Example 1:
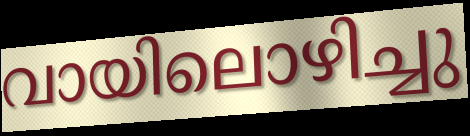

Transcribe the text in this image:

വായിലൊഴിച്ചു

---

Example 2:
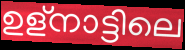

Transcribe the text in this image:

ഉള്നാട്ടിലെ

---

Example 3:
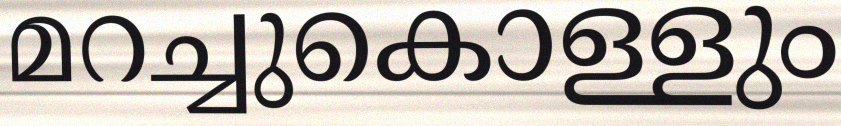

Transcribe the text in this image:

മറച്ചുകൊള്ളും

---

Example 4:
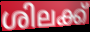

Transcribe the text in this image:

ശിലക്ക്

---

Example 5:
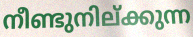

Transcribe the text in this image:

നീണ്ടുനില്ക്കുന്ന